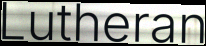
Lutheran